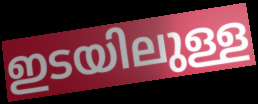
ഇടയിലുള്ള